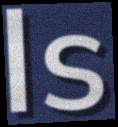
Is